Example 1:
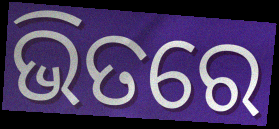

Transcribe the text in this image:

ଭିତରେ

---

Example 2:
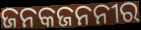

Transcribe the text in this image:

ଜନକଜନନୀର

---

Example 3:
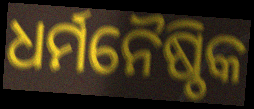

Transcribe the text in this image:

ଧର୍ମନୈଷ୍ଠିକ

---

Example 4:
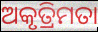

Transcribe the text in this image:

ଅକୃତ୍ରିମତା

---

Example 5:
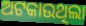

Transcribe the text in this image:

ଅଟକାଉଥିଲା